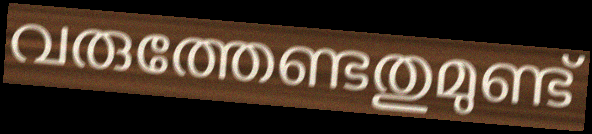
വരുത്തേണ്ടതുമുണ്ട്